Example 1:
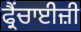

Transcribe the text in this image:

ਫ੍ਰੈਂਚਾਈਜ਼ੀ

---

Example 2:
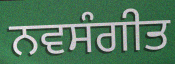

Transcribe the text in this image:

ਨਵਸੰਗੀਤ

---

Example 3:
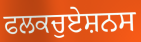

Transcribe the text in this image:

ਫਲਕਚੁਏਸ਼ਨਸ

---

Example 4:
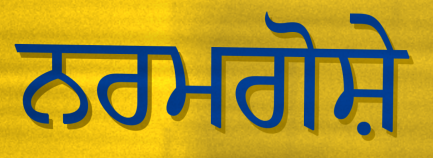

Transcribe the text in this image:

ਨਰਮਗੋਸ਼ੇ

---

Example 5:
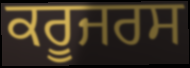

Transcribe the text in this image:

ਕਰੂਜਰਸ